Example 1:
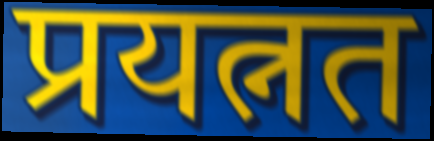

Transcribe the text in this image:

प्रयत्नत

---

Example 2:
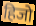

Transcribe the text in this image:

हिजो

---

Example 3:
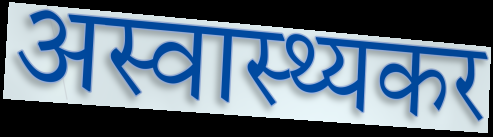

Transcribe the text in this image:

अस्वास्थ्यकर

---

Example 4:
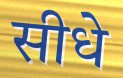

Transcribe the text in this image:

सीधे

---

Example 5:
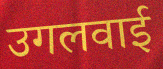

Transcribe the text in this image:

उगलवाई